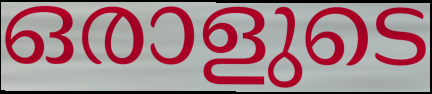
ഒരാളുടെ